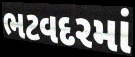
ભટવદરમાં